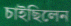
চাইছিলেন